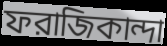
ফরাজিকান্দা